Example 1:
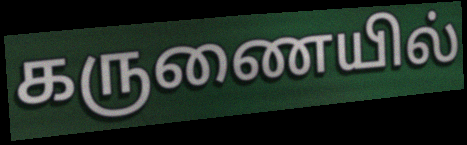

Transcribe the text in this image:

கருணையில்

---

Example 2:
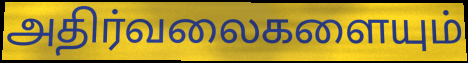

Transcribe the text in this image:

அதிர்வலைகளையும்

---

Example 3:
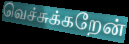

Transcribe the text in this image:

வெச்சுக்கறேன்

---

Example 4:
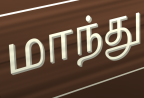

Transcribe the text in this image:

மாந்து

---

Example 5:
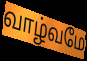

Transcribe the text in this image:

வாழ்வமே